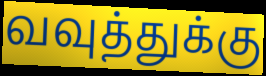
வவுத்துக்கு